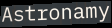
Astronamy